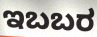
ಇಬಬರ